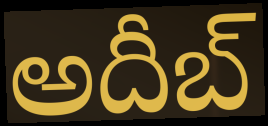
అదీబ్